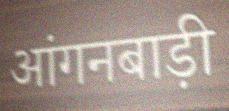
आंगनबाड़ी